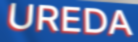
UREDA